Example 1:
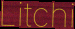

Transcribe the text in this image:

Litchi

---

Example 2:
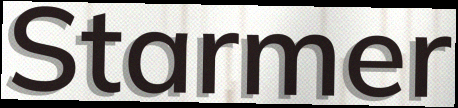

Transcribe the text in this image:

Starmer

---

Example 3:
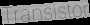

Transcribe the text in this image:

Transistor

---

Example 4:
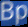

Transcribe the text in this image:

Bp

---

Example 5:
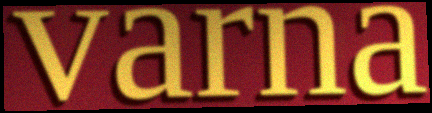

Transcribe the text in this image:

varna